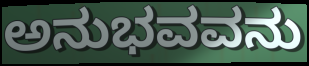
ಅನುಭವವನು